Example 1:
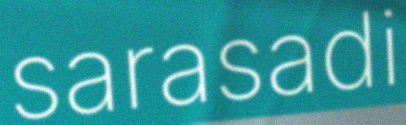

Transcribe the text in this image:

sarasadi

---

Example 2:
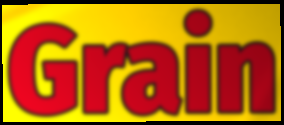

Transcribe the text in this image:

Grain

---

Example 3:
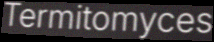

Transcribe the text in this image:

Termitomyces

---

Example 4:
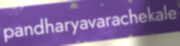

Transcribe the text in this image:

pandharyavarachekale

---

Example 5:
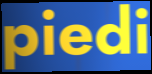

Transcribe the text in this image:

piedi